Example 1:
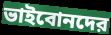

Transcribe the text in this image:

ভাইবোনদের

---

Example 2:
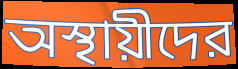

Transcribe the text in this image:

অস্থায়ীদের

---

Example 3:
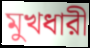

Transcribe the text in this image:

মুখধারী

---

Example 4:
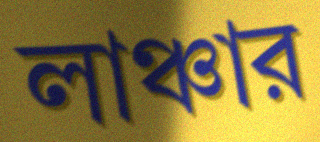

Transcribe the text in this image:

লাঞ্চার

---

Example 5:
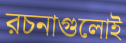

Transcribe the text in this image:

রচনাগুলোই